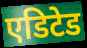
एडिटेड